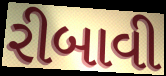
રીબાવી